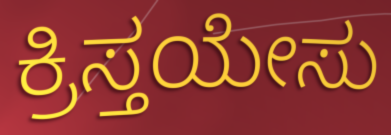
ಕ್ರಿಸ್ತಯೇಸು